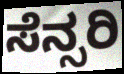
ಸೆನ್ಸರಿ